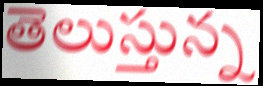
తెలుస్తున్న